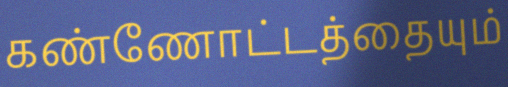
கண்ணோட்டத்தையும்